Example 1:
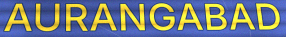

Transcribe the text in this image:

AURANGABAD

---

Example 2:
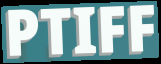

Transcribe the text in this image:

PTIFF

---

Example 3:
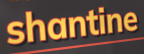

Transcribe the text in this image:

shantine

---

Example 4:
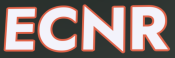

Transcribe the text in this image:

ECNR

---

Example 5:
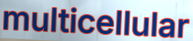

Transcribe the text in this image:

multicellular